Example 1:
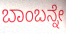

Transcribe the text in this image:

ಬಾಂಬನ್ನೇ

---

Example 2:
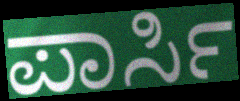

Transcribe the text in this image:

ಪಾರ್ಸಿ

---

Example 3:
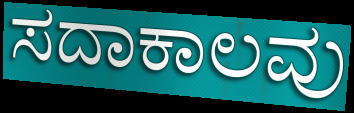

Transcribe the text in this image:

ಸದಾಕಾಲವು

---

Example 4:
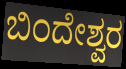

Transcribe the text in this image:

ಬಿಂದೇಶ್ವರ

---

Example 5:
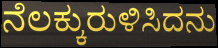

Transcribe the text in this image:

ನೆಲಕ್ಕುರುಳಿಸಿದನು